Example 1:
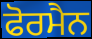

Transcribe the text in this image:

ਫੋਰਮੈਨ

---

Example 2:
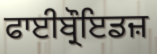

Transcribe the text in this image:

ਫਾਈਬ੍ਰੌਇਡਜ਼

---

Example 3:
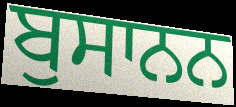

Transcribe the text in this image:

ਬੁਸਾਨਨ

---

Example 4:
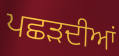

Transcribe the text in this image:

ਪਛੜਦੀਆਂ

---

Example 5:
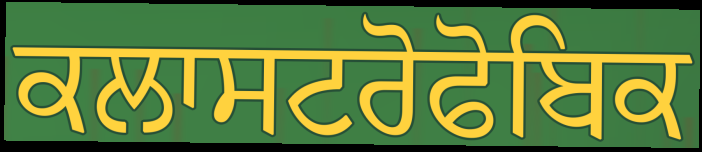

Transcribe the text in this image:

ਕਲਾਸਟਰੋਫੋਬਿਕ